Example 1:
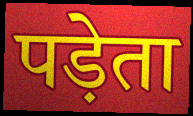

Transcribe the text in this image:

पड़ेता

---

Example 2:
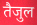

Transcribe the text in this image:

तैजुल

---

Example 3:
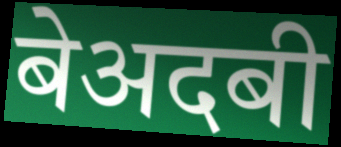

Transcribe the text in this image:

बेअदबी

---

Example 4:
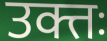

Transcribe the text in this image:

उक्तः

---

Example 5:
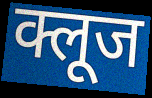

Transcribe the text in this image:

क्लूज